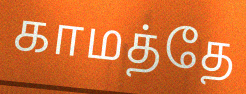
காமத்தே